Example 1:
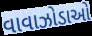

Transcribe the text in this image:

વાવાઝોડાઓ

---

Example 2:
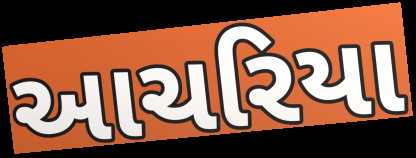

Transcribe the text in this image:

આચરિયા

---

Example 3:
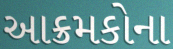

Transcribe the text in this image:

આક્રમકોના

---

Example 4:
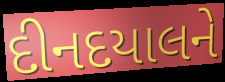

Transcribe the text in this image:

દીનદયાલને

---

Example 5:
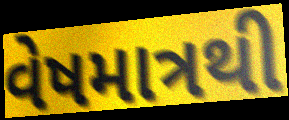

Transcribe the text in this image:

વેષમાત્રથી